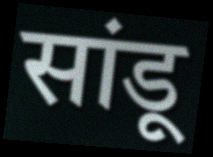
सांडू